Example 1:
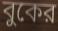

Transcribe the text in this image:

বুকের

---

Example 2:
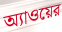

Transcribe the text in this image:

অ্যাওয়ের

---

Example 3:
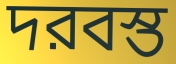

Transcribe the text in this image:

দরবস্ত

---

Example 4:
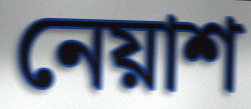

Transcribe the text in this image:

নেয়াশ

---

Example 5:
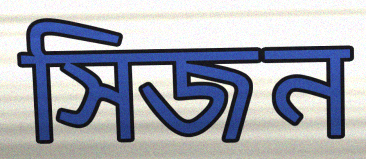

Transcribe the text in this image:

সিজন